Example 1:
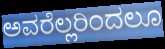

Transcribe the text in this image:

ಅವರೆಲ್ಲರಿಂದಲೂ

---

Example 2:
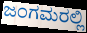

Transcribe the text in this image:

ಜಂಗಮರಲ್ಲಿ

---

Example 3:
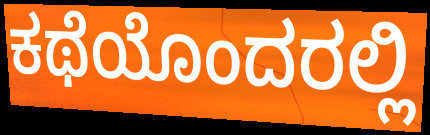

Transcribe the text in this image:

ಕಥೆಯೊಂದರಲ್ಲಿ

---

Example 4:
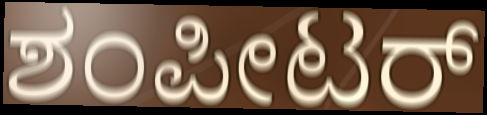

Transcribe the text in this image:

ಶಂಪೀಟರ್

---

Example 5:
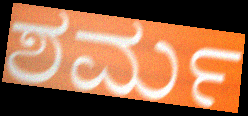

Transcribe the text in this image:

ಶರ್ಮ